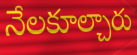
నేలకూల్చారు